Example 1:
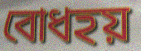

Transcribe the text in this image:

বোধহয়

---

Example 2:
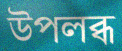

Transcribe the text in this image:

উপলব্ধ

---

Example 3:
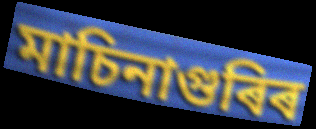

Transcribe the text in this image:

মাচিনাগুৰিৰ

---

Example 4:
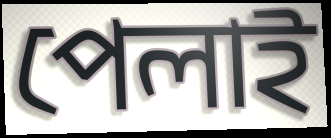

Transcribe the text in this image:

পেলাই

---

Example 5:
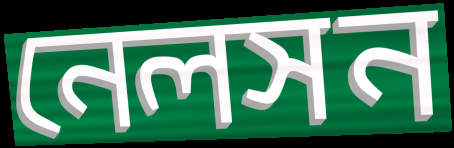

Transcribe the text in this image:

নেলসন